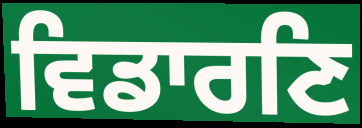
ਵਿਡਾਰਣਿ